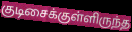
குடிசைக்குள்ளிருந்த